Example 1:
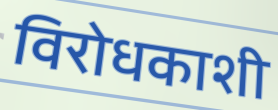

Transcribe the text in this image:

विरोधकाशी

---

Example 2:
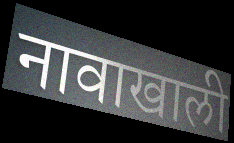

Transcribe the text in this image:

नावाखाली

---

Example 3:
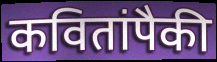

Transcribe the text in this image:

कवितांपैकी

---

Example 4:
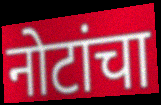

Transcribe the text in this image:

नोटांचा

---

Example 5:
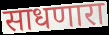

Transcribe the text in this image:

साधणारा